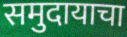
समुदायाचा